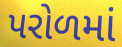
પરોળમાં